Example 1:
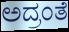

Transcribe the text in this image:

ಅದ್ರಂತೆ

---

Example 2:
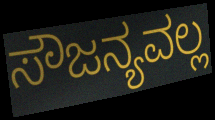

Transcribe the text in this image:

ಸೌಜನ್ಯವಲ್ಲ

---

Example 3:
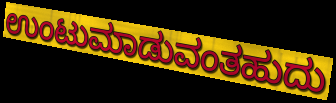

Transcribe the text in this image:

ಉಂಟುಮಾಡುವಂತಹುದು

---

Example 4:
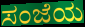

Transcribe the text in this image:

ಸಂಜೆಯ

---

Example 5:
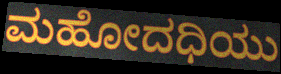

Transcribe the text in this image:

ಮಹೋದಧಿಯು